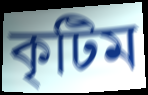
কৃটিম